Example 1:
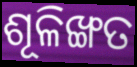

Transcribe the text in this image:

ଶୂଳିଙ୍ଖତ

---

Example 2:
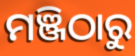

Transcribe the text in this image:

ମଞ୍ଜିଠାରୁ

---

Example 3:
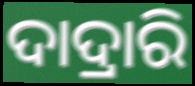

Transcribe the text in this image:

ଦାଦ୍ରାରି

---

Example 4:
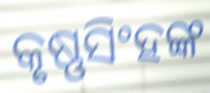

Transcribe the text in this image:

କୃଷ୍ଣସିଂହଙ୍କ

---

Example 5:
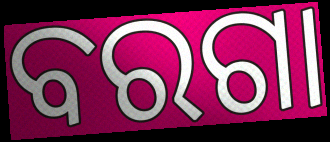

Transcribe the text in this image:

ବରଗା